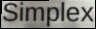
Simplex